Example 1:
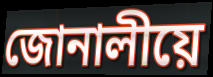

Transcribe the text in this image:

জোনালীয়ে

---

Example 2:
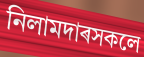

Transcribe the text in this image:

নিলামদাৰসকলে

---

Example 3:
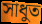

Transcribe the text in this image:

সাধুত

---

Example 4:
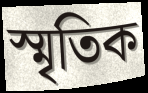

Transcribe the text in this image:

স্মৃতিক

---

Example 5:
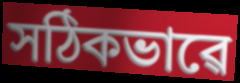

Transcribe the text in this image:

সঠিকভাৱে